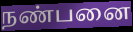
நண்பனை